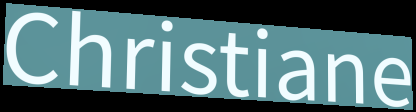
Christiane